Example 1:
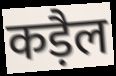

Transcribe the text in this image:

कड़ैल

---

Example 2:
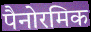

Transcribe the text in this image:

पैनोरमिक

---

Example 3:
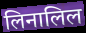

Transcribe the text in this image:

लिनालिल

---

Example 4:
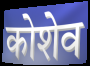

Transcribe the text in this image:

कोशेव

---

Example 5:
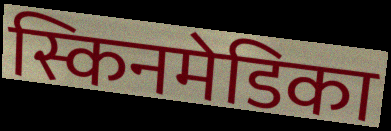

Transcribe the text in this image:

स्किनमेडिका